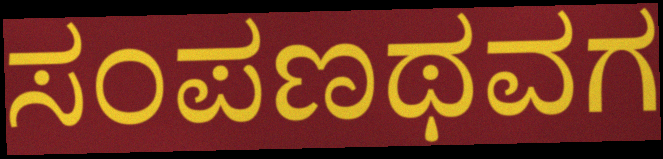
ಸಂಪಣಥವಗ